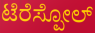
ಟೆರೆಸ್ಪೋಲ್